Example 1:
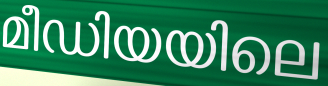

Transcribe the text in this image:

മീഡിയയിലെ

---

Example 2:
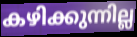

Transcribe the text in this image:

കഴിക്കുന്നില്ല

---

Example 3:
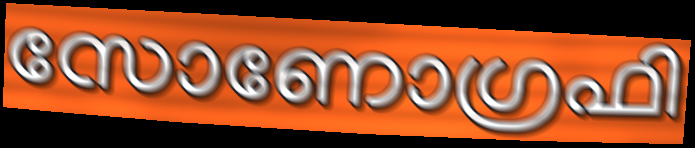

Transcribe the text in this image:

സോണോഗ്രഫി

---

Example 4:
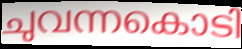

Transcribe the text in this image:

ചുവന്നകൊടി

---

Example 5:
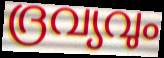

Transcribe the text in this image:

ദ്രവ്യവും